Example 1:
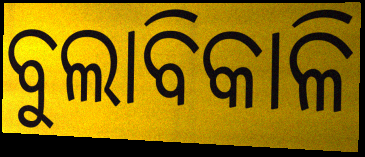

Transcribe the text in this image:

ବୁଲାବିକାଳି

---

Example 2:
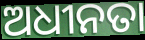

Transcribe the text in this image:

ଅଧୀନତା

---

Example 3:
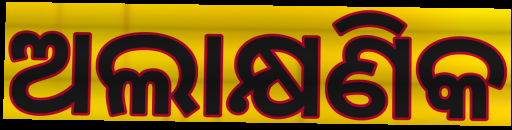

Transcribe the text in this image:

ଅଲାକ୍ଷଣିକ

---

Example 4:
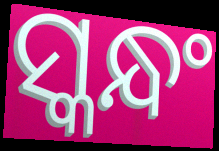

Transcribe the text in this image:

ସ୍କନ୍ଧଂ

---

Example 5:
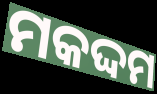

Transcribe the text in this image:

ମକଦ୍ଦମ